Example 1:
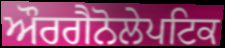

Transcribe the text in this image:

ਔਰਗੈਨੋਲੇਪਟਿਕ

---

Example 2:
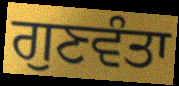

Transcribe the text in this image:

ਗੁਣਵੰਤਾ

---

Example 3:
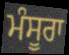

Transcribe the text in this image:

ਮੰਸੂਰਾ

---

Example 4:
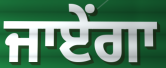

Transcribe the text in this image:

ਜਾਏਂਗਾ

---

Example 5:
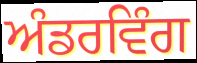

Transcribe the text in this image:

ਅੰਡਰਵਿੰਗ